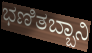
ಭಣಿತಬ್ಬಾನಿ